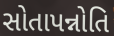
સોતાપન્નોતિ